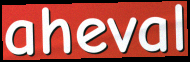
aheval